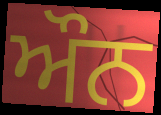
ਔਨ